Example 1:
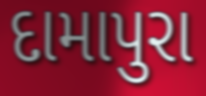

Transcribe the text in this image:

દામાપુરા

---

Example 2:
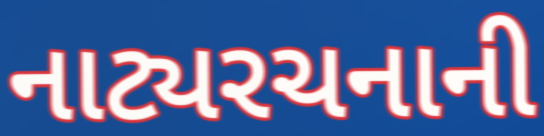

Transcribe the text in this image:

નાટ્યરચનાની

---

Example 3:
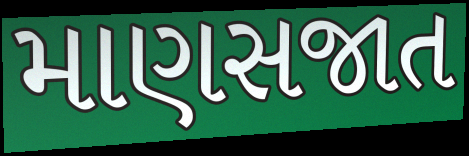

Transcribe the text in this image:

માણસજાત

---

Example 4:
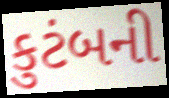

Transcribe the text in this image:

કુટંબની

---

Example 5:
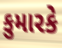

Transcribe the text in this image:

કુમારકે